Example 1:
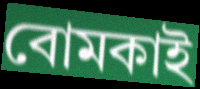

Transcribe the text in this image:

বোমকাই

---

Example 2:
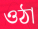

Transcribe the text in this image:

ওঠা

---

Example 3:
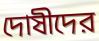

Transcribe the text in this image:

দোষীদের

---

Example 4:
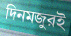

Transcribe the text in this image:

দিনমজুরই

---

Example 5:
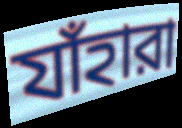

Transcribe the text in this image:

যাঁহারা